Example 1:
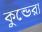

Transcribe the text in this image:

কুন্ডেরা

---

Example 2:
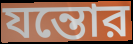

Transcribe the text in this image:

যন্তোর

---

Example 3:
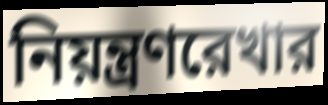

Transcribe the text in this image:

নিয়ন্ত্রণরেখার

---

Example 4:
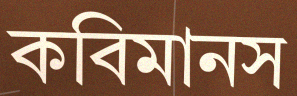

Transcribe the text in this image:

কবিমানস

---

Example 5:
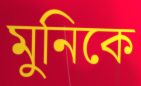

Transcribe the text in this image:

মুনিকে